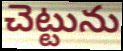
చెట్టును